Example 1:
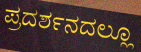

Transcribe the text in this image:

ಪ್ರದರ್ಶನದಲ್ಲೂ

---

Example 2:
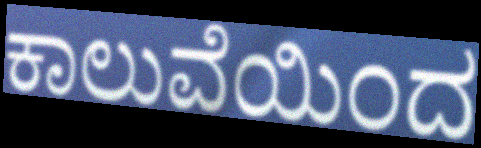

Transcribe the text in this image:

ಕಾಲುವೆಯಿಂದ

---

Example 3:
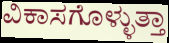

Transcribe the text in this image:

ವಿಕಾಸಗೊಳ್ಳುತ್ತಾ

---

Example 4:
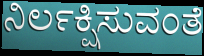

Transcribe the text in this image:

ನಿರ್ಲಕ್ಷಿಸುವಂತೆ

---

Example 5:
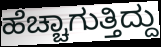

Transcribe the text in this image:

ಹೆಚ್ಚಾಗುತ್ತಿದ್ದು